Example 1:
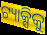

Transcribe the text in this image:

ଟ୍ୟାକ୍ସିକୁ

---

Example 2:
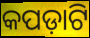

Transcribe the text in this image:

କପଡ଼ାଟି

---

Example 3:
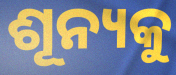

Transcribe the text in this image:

ଶୂନ୍ୟକୁ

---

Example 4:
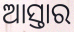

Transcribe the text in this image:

ଆସ୍ତାର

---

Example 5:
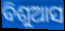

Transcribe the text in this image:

ବିଶୁଆସ